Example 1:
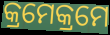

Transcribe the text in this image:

କ୍ରମେକ୍ରମେ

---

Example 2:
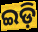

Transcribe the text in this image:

ଇଡ଼ି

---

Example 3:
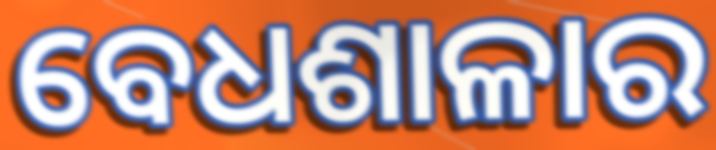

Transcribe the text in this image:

ବେଧଶାଳାର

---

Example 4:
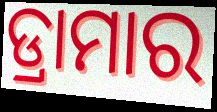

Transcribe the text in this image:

ଡ୍ରାମାର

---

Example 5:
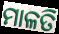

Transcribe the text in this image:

ମାଳତି